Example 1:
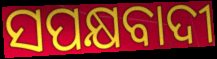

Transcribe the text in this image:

ସପକ୍ଷବାଦୀ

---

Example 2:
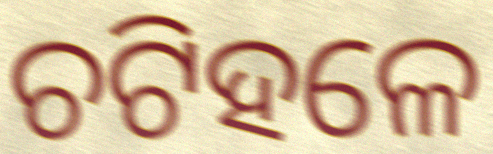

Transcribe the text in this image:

ଚଟିହଳେ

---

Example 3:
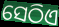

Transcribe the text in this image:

ସେଠିଏ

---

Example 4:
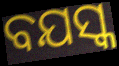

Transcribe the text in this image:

ବଯସ୍କ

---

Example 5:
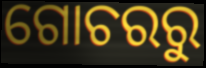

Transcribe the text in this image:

ଗୋଚରରୁ